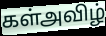
கள்அவிழ்